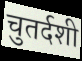
चुतर्दशी